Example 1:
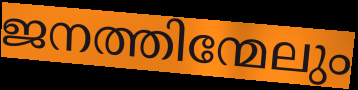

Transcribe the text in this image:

ജനത്തിന്മേലും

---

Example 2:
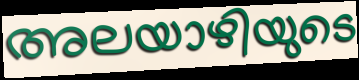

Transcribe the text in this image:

അലയാഴിയുടെ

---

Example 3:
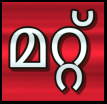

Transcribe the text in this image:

മറ്റ്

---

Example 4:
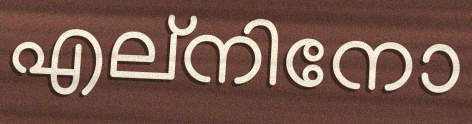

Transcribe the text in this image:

എല്നിനോ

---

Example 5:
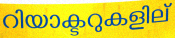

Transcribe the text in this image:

റിയാക്ടറുകളില്